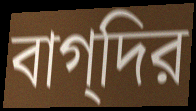
বাগ্‌দির